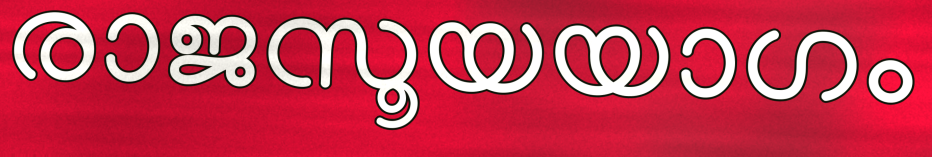
രാജസൂയയാഗം